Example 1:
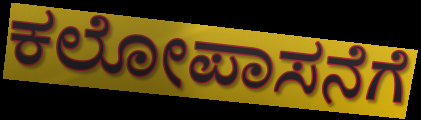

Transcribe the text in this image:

ಕಲೋಪಾಸನೆಗೆ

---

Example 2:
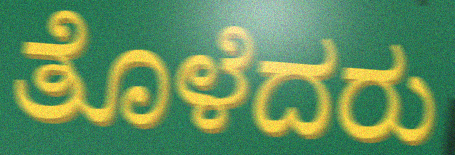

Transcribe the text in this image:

ತೊಳೆದರು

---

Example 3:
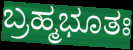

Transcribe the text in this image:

ಬ್ರಹ್ಮಭೂತಃ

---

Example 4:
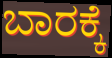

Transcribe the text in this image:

ಬಾರಕ್ಕೆ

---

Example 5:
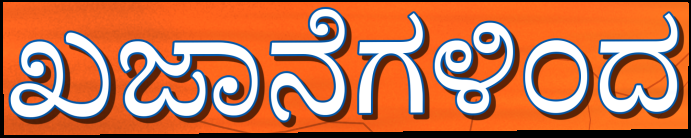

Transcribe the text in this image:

ಖಜಾನೆಗಳಿಂದ